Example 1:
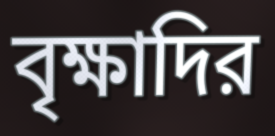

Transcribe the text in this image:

বৃক্ষাদির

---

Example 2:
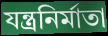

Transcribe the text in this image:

যন্ত্রনির্মাতা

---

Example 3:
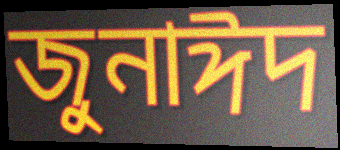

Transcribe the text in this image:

জুনাঈদ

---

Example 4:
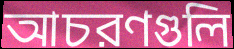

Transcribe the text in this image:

আচরণগুলি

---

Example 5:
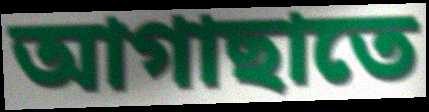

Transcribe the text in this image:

আগাছাতে